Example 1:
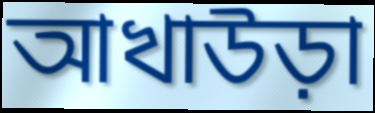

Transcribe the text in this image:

আখাউড়া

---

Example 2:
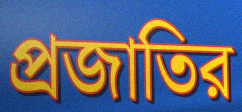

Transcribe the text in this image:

প্রজাতির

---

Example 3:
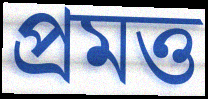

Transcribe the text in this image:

প্রমত্ত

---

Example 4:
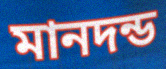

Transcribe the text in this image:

মানদন্ড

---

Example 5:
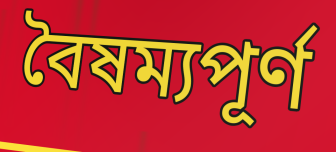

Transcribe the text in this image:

বৈষম্যপূর্ণ